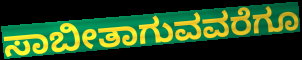
ಸಾಬೀತಾಗುವವರೆಗೂ